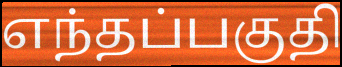
எந்தப்பகுதி